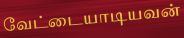
வேட்டையாடியவன்